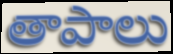
తాపాలు